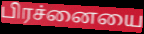
பிரச்னையை